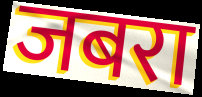
जबरा